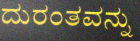
ದುರಂತವನ್ನು